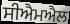
ਸੀਐਮਐਲ